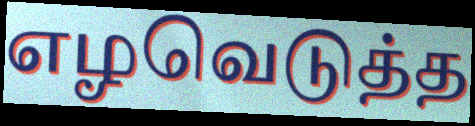
எழவெடுத்த